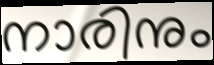
നാരിനും